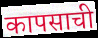
कापसाची